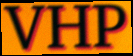
VHP